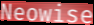
Neowise